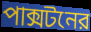
পাক্সটনের